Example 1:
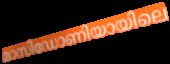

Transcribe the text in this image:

മാസിഡോണിയായിലെ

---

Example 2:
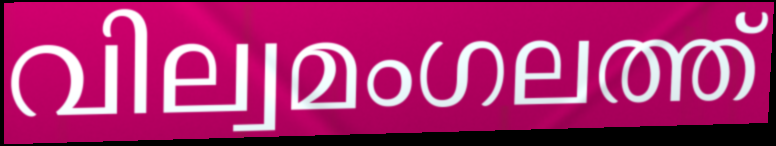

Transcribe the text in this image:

വില്വമംഗലത്ത്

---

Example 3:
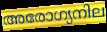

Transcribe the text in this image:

അരോഗ്യനില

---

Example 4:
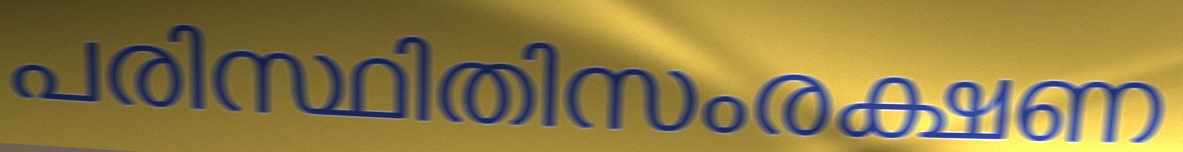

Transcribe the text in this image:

പരിസ്ഥിതിസംരക്ഷണ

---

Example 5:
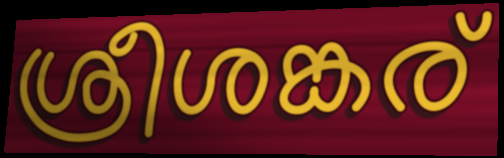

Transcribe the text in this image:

ശ്രീശങ്കര്